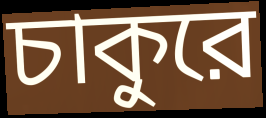
চাকুরে